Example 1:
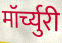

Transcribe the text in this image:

मॉर्च्युरी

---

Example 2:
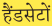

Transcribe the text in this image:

हैंडसेटों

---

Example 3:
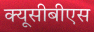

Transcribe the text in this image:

क्यूसीबीएस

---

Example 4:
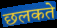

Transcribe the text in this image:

छलकते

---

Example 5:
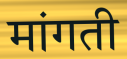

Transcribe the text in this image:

मांगती